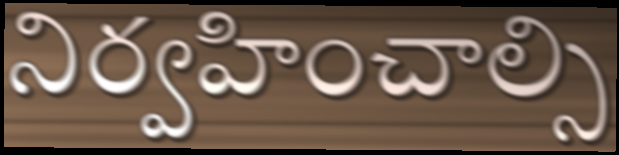
నిర్వహించాల్సి